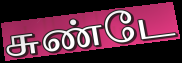
சுண்டே